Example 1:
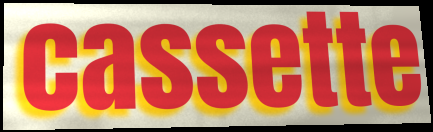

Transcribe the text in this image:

cassette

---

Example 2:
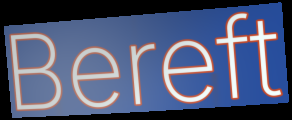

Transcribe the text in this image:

Bereft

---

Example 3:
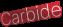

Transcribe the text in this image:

Carbide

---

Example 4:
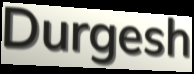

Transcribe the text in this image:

Durgesh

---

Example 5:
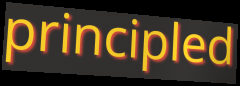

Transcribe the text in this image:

principled